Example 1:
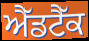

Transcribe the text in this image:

ਐੱਡਟੈੱਕ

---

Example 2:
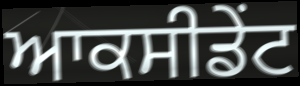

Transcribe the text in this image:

ਆਕਸੀਡੇਂਟ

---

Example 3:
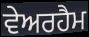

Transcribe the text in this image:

ਵੇਅਰਹੈਮ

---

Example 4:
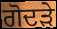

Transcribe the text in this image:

ਗੋਦੜੇ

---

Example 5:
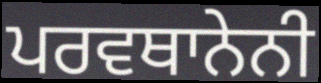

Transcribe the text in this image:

ਪਰਵਥਾਨੇਨੀ